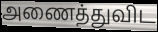
அணைத்துவிட